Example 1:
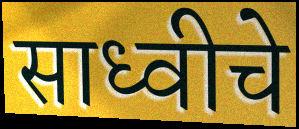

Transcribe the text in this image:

साध्वीचे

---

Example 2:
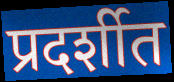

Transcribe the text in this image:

प्रदर्शीत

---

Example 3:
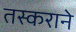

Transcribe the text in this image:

तस्कराने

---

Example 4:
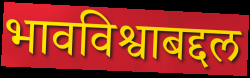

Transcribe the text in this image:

भावविश्वाबद्दल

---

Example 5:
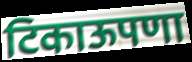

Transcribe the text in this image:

टिकाऊपणा